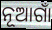
ନୂଆଗାଁ